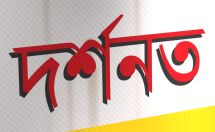
দৰ্শনত